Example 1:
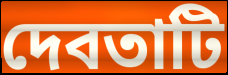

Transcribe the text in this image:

দেবতাটি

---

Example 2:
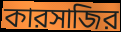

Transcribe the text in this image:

কারসাজির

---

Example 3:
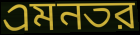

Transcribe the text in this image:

এমনতর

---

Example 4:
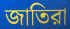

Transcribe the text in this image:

জাতিরা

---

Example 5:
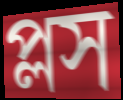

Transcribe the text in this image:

প্লস